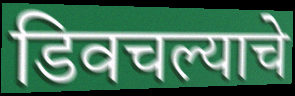
डिवचल्याचे